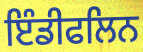
ਇੰਡੀਫਲਿਨ